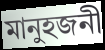
মানুহজনী